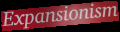
Expansionism